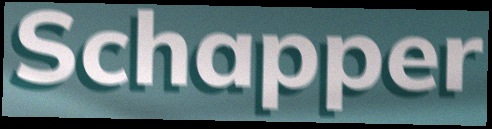
Schapper